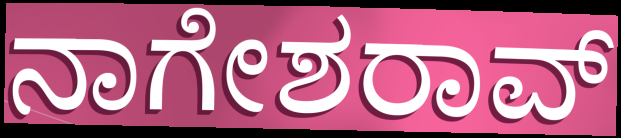
ನಾಗೇಶರಾವ್